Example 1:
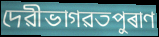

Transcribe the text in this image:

দেৱীভাগৱতপুৰাণ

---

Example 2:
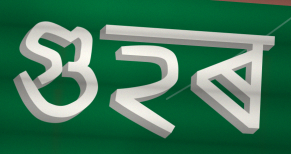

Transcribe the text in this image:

গুহৰ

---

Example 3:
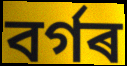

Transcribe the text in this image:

বৰ্গৰ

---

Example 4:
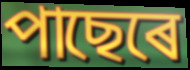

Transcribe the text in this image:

পাছেৰে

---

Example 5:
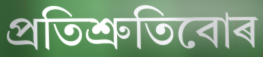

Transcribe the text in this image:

প্ৰতিশ্ৰুতিবোৰ